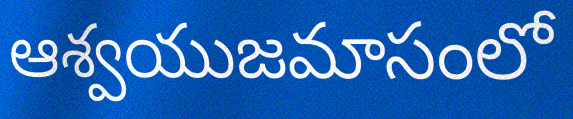
ఆశ్వయుజమాసంలో